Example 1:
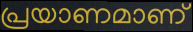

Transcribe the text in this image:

പ്രയാണമാണ്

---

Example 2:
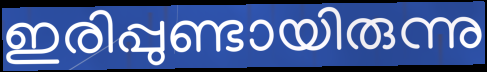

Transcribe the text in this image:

ഇരിപ്പുണ്ടായിരുന്നു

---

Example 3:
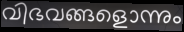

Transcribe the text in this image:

വിഭവങ്ങളൊന്നും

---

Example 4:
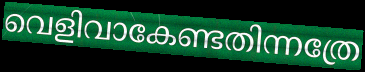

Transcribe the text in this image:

വെളിവാകേണ്ടതിന്നത്രേ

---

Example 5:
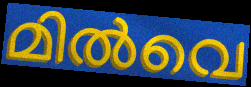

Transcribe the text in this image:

മിൽവെ